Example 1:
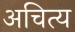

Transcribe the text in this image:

अचित्य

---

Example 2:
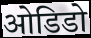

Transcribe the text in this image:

ओडिडो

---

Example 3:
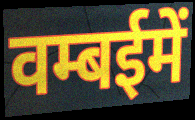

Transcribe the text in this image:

वम्बईमें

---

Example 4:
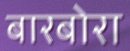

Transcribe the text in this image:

बारबोरा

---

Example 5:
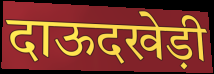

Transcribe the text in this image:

दाऊदखेड़ी